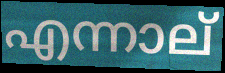
എന്നാല്